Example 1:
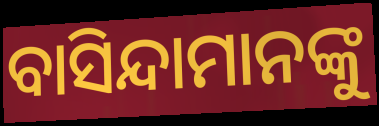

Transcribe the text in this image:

ବାସିନ୍ଦାମାନଙ୍କୁ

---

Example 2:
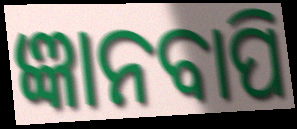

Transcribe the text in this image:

ଜ୍ଞାନବାପି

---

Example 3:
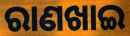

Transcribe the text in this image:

ରାଣଖାଇ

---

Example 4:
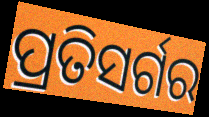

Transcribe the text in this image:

ପ୍ରତିସର୍ଗର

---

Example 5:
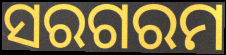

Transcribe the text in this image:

ସରଗରମ